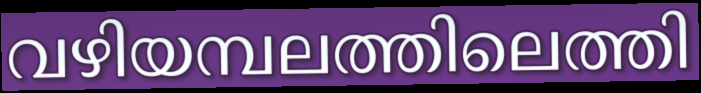
വഴിയമ്പലത്തിലെത്തി